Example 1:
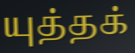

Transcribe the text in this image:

யுத்தக்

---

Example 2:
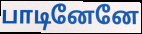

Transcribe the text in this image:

பாடினேனே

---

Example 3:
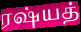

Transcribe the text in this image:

ரஷ்யத்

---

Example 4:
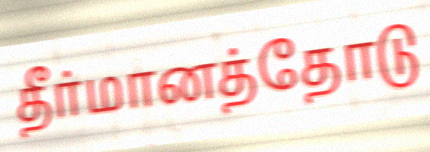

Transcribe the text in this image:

தீர்மானத்தோடு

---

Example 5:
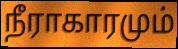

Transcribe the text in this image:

நீராகாரமும்